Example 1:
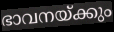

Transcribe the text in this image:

ഭാവനയ്ക്കും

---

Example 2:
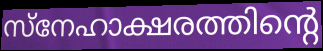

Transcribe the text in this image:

സ്നേഹാക്ഷരത്തിന്റെ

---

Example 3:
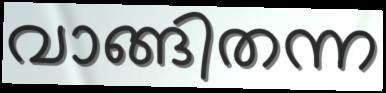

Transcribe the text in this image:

വാങ്ങിതന്ന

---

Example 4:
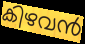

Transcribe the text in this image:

കിഴവൻ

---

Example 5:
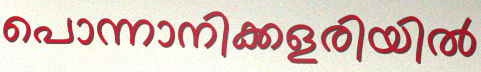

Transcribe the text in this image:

പൊന്നാനിക്കളരിയിൽ